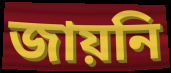
জায়নি